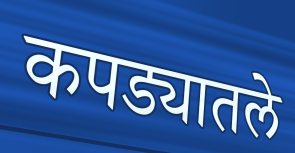
कपड्यातले